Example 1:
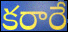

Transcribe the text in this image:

కరారే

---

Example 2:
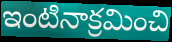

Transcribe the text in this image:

ఇంటినాక్రమించి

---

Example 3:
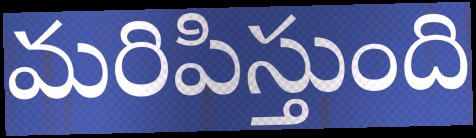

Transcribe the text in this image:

మరిపిస్తుంది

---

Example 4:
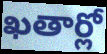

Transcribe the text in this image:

ఖతార్లో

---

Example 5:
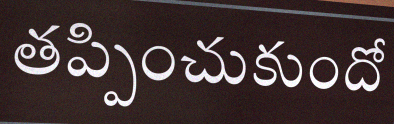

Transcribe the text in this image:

తప్పించుకుందో